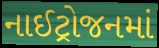
નાઈટ્રોજનમાં